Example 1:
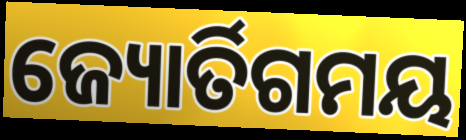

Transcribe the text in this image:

ଜ୍ୟୋର୍ତିଗମୟ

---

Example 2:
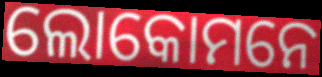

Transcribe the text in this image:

ଲୋକୋମନେ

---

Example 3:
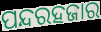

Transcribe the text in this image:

ପନ୍ଦରହଜାର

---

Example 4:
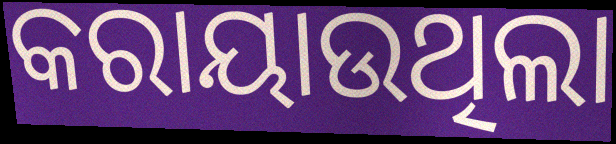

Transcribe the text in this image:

କରାୟାଉଥିଲା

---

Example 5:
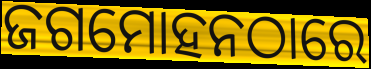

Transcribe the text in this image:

ଜଗମୋହନଠାରେ